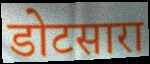
डोटसारा